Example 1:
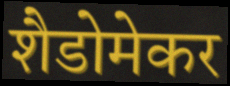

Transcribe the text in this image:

शैडोमेकर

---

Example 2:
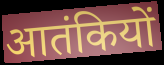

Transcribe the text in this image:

आतंकियों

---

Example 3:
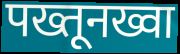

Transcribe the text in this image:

पख्तूनख्वा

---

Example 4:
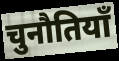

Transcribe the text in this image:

चुनौतियॉं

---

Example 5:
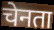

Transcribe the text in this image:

चेनता